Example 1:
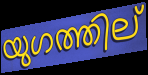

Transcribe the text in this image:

യുഗത്തില്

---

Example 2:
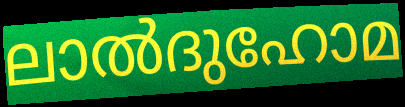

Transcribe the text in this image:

ലാൽദുഹോമ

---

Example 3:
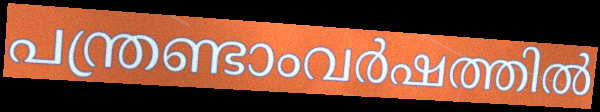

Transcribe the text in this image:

പന്ത്രണ്ടാംവർഷത്തിൽ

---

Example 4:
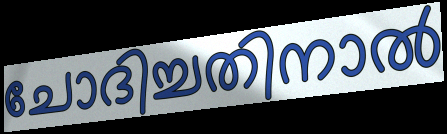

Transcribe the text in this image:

ചോദിച്ചതിനാൽ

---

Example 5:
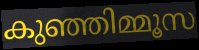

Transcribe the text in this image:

കുഞ്ഞിമ്മൂസ